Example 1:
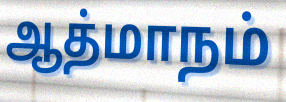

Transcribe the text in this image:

ஆத்மாநம்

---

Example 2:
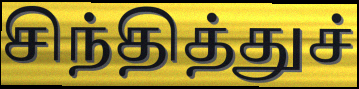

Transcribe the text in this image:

சிந்தித்துச்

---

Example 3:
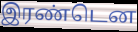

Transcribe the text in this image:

இரண்டென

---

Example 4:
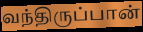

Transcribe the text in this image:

வந்திருப்பான்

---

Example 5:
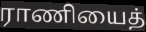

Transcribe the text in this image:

ராணியைத்